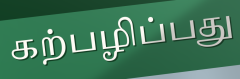
கற்பழிப்பது